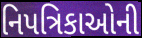
નિપત્રિકાઓની